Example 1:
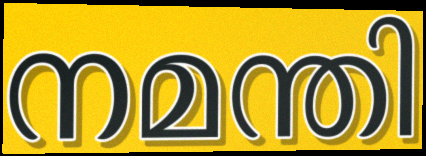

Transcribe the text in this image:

നമന്തി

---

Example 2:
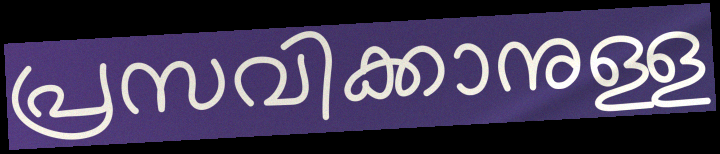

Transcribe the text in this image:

പ്രസവിക്കാനുള്ള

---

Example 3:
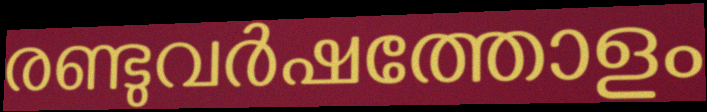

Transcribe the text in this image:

രണ്ടുവർഷത്തോളം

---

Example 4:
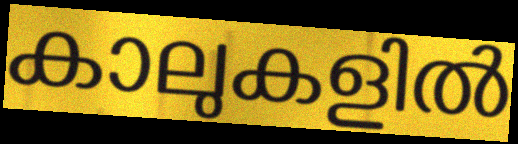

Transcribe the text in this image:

കാലുകളിൽ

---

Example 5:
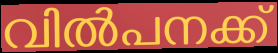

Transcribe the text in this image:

വിൽപനക്ക്